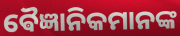
ଵୈଜ୍ଞାନିକମାନଙ୍କ